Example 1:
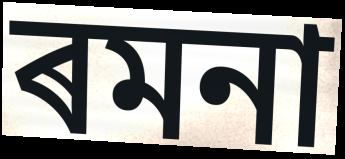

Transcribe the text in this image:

ৰমনা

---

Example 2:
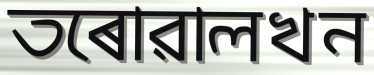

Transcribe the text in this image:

তৰোৱালখন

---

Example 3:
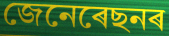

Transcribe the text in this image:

জেনেৰেছনৰ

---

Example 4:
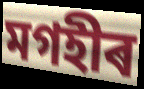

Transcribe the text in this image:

মগহীৰ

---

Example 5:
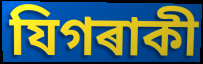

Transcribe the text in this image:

যিগৰাকী